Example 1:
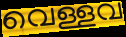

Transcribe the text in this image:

വെള്ളവ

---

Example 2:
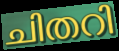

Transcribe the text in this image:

ചിതറി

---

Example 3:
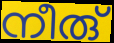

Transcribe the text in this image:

നീരു്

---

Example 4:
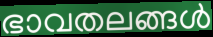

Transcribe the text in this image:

ഭാവതലങ്ങൾ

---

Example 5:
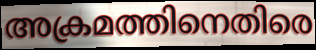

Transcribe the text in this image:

അക്രമത്തിനെതിരെ